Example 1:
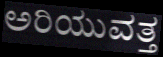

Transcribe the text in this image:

ಅರಿಯುವತ್ತ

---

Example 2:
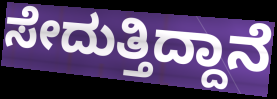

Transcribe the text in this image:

ಸೇದುತ್ತಿದ್ದಾನೆ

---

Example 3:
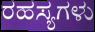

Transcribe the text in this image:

ರಹಸ್ಯಗಳು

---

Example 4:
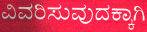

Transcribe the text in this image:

ವಿವರಿಸುವುದಕ್ಕಾಗಿ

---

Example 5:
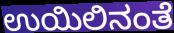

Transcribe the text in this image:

ಉಯಿಲಿನಂತೆ